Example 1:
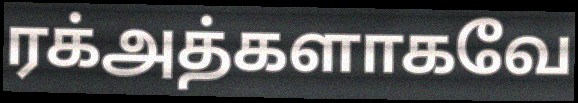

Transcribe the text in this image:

ரக்அத்களாகவே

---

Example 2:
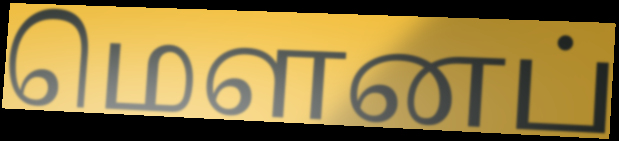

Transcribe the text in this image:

மெளனப்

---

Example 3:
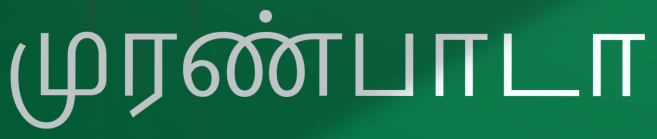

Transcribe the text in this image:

முரண்பாடா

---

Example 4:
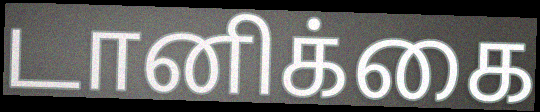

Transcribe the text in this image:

டானிக்கை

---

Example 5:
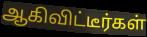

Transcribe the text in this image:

ஆகிவிட்டீர்கள்